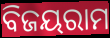
ବିଜୟରାମ